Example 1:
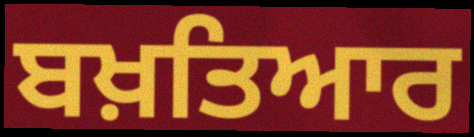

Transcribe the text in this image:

ਬਖ਼ਤਿਆਰ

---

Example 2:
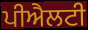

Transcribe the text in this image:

ਪੀਐਲਟੀ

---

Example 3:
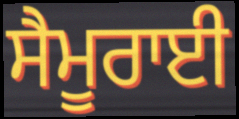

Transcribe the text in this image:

ਸੈਮੂਰਾਈ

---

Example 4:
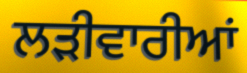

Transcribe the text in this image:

ਲੜੀਵਾਰੀਆਂ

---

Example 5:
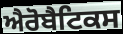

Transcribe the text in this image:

ਐਰੋਬੈਟਿਕਸ